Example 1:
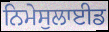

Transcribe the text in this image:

ਨਿਮੇਸੁਲਾਈਡ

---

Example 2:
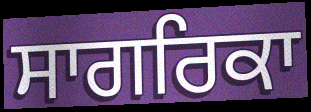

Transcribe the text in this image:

ਸਾਗਰਿਕਾ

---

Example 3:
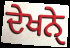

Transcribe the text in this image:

ਦੇਖਨੑੇ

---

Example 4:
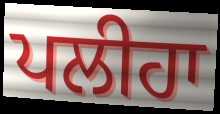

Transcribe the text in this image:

ਪਲੀਹਾ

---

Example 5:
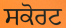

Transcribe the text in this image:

ਸਕੋਰਟ